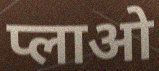
प्लाओ